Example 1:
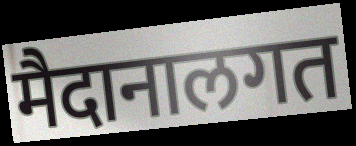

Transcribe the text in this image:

मैदानालगत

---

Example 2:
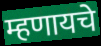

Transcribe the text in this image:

म्हणायचे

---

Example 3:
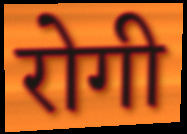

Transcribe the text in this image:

रोगी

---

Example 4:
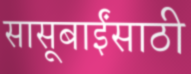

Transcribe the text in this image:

सासूबाईंसाठी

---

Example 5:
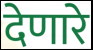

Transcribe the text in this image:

देणारे